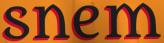
snem